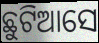
ଛୁଟିଆସେ